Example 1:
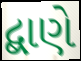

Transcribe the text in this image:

દ્બાણે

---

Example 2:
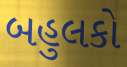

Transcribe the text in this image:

બહુલકો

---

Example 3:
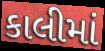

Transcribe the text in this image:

કાલીમાં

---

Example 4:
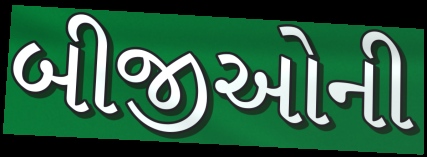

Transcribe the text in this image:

બીજીઓની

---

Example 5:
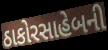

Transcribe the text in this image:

ઠાકોરસાહેબની